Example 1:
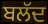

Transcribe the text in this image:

ਬਲੱਦ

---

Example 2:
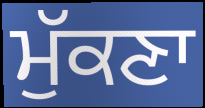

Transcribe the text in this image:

ਮੁੱਕਣਾ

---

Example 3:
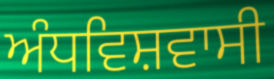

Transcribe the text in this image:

ਅੰਧਵਿਸ਼ਵਾਸੀ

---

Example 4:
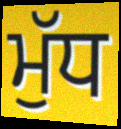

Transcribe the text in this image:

ਮੁੱਧ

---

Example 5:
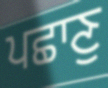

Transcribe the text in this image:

ਪਛਾਣੁ